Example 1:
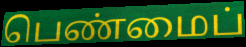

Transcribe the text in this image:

பெண்மைப்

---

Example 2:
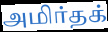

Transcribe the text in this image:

அமிர்தக்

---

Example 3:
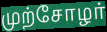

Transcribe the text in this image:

முற்சோழர்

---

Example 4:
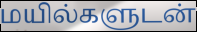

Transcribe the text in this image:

மயில்களுடன்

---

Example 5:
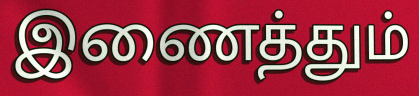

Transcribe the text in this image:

இணைத்தும்